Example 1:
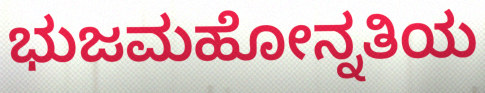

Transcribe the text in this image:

ಭುಜಮಹೋನ್ನತಿಯ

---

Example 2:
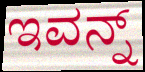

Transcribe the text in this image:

ಇವನ್ನ್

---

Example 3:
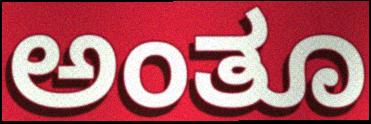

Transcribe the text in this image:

ಅಂತೂ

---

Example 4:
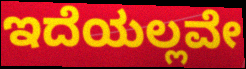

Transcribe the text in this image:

ಇದೆಯಲ್ಲವೇ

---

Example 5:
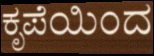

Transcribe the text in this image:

ಕೃಪೆಯಿಂದ